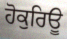
ਹੋਕੁਰਿਊ